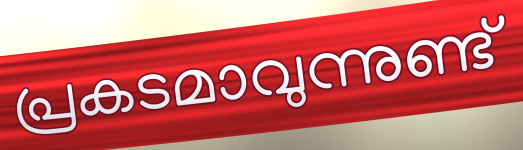
പ്രകടമാവുന്നുണ്ട്